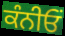
ਕੰਨੀਓਂ